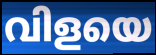
വിളയെ